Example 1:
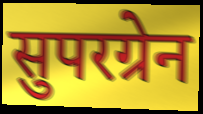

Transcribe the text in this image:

सुपरग्रेन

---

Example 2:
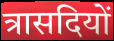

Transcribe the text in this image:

त्रासदियों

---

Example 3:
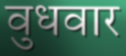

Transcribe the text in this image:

वुधवार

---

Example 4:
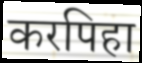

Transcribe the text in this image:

करपिहा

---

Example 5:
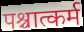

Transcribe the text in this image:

पश्चात्कर्म